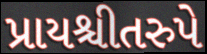
પ્રાયશ્ચીતરુપે